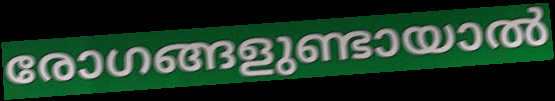
രോഗങ്ങളുണ്ടായാൽ